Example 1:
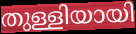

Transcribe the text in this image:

തുള്ളിയായി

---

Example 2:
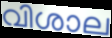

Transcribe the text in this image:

വിശാല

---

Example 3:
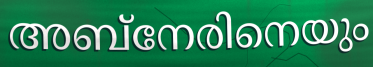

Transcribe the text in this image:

അബ്നേരിനെയും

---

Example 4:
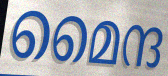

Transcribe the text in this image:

മൈന്ദ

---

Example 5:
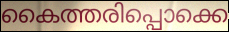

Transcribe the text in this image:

കൈത്തരിപ്പൊക്കെ